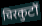
चिरकुटों